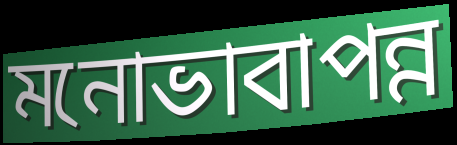
মনোভাবাপন্ন